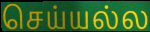
செய்யல்ல